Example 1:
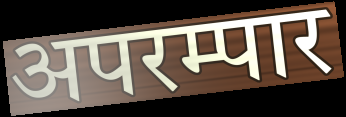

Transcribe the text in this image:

अपरम्पार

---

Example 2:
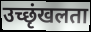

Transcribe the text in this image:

उच्छृंखलता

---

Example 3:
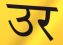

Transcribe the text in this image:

उर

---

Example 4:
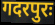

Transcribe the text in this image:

गदरपुरः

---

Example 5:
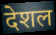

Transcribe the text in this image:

देशल